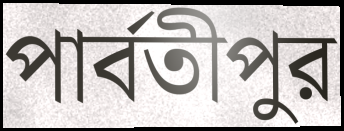
পার্বতীপুর